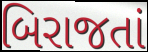
બિરાજતાં